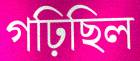
গঢ়িছিল